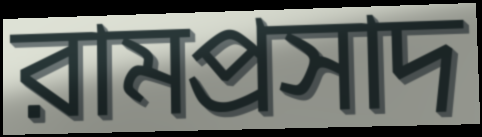
রামপ্রসাদ